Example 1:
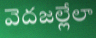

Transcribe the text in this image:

వెదజల్లేలా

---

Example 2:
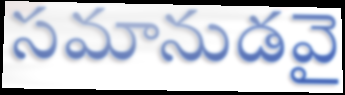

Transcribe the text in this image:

సమానుడవై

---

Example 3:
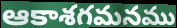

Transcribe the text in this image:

ఆకాశగమనము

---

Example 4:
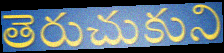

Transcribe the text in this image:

తెరుచుకుని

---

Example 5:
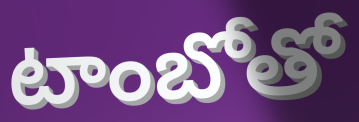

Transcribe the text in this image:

టాంబోతో